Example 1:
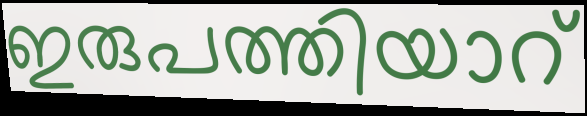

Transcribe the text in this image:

ഇരുപത്തിയാറ്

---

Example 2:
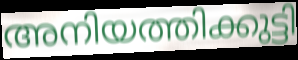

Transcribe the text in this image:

അനിയത്തിക്കുട്ടി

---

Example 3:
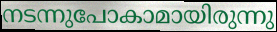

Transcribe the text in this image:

നടന്നുപോകാമായിരുന്നു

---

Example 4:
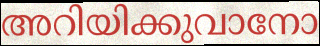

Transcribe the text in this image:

അറിയിക്കുവാനോ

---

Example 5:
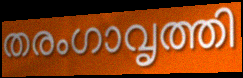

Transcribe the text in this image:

തരംഗാവൃത്തി